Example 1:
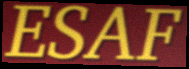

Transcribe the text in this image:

ESAF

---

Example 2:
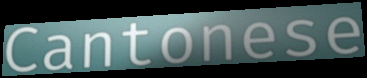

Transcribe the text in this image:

Cantonese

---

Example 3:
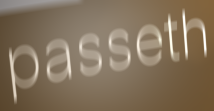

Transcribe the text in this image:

passeth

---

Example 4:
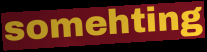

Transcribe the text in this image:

somehting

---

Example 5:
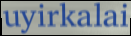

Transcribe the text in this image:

uyirkalai